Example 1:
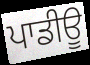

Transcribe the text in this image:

ਪਾਡੀਊ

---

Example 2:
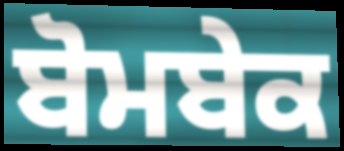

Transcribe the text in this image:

ਬੋਮਬੇਕ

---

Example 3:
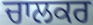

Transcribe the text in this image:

ਚਾਲਕਰ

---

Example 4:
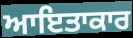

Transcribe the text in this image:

ਆਇਤਾਕਾਰ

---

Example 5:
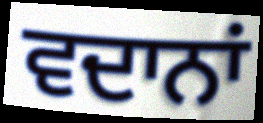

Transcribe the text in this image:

ਵਦਾਨਾਂ